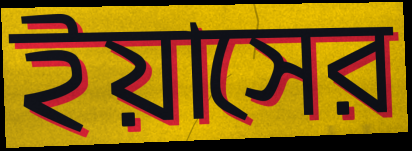
ইয়াসের